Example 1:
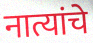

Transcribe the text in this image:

नात्यांचे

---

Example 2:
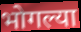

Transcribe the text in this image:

भोगल्या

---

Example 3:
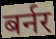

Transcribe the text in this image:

बर्नर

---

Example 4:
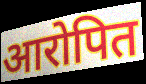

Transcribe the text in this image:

आरोपित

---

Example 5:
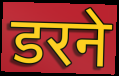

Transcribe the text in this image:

डरने